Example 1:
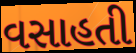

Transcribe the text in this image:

વસાહતી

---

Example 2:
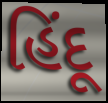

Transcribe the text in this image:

હિંદૂ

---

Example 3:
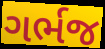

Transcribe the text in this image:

ગર્ભજ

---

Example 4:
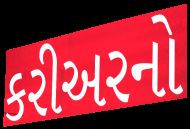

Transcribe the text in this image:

કરીઅરનો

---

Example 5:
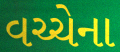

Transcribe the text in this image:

વચ્ચેના